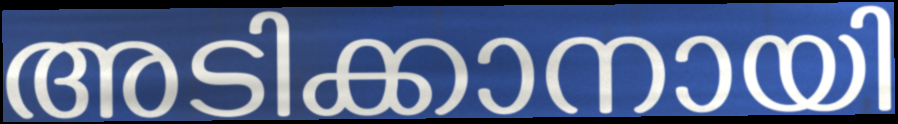
അടിക്കാനായി